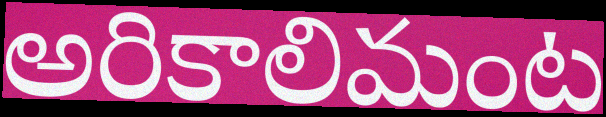
అరికాలిమంట